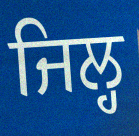
ਜਿਲ੍ਹ